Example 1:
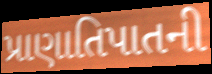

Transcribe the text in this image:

પ્રાણાતિપાતની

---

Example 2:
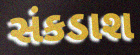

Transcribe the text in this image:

સંકડાશ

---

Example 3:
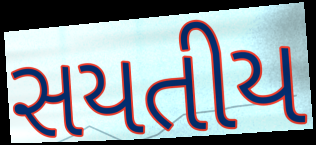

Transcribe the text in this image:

સયતીય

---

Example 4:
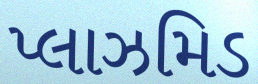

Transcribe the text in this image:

પ્લાઝમિડ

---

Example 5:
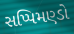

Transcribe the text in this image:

સપ્પિમણ્ડો